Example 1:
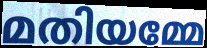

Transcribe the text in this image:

മതിയമ്മേ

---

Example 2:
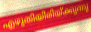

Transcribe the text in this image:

എഴുതിയിരിയ്ക്കുന്നു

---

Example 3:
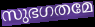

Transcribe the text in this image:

സുഭഗതമേ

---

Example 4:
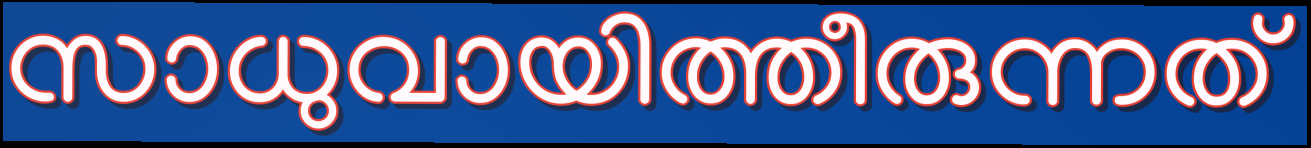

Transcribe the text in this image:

സാധുവായിത്തീരുന്നത്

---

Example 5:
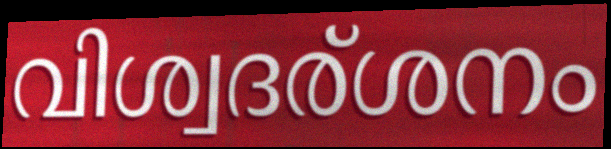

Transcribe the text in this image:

വിശ്വദര്ശനം